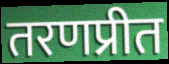
तरणप्रीत